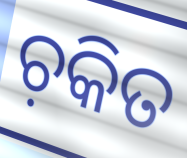
ଚ଼କିତ